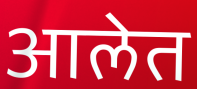
आलेत